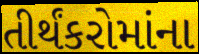
તીર્થંકરોમાંના